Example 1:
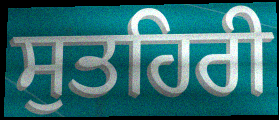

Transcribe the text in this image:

ਸੁਤਹਿਰੀ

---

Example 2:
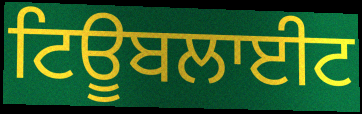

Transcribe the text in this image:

ਟਿਊਬਲਾਈਟ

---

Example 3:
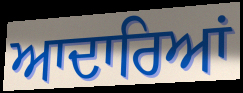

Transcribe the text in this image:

ਆਦਾਰਿਆਂ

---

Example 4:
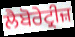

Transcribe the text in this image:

ਲੈਬੋਰੇਟ੍ਰੀਜ਼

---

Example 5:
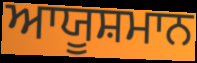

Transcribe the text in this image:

ਆਯੂਸ਼ਮਾਨ